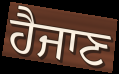
ਹੈਜਾਣ